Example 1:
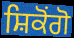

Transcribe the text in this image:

ਸ਼ਿਕੋਂਗੋ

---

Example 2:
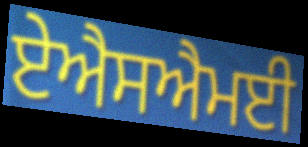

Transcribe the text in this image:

ਏਐਸਐਮਈ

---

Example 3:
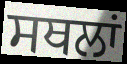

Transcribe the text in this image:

ਸਥਲਾਂ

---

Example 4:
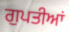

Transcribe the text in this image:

ਗੁਪਤੀਆਂ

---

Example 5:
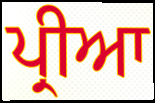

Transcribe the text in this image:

ਪ੍ਰੀਆ